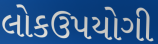
લોકઉપયોગી